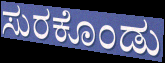
ಸುರಕೊಂಡು